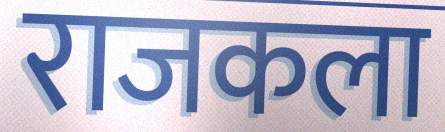
राजकला